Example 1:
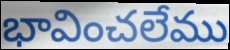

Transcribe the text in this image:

భావించలేము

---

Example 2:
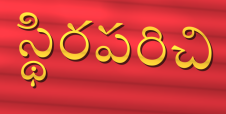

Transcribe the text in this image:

స్థిరపరిచి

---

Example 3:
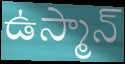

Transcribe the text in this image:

ఉస్మాన్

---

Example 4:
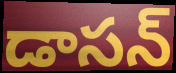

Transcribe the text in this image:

డాసన్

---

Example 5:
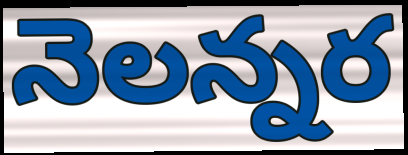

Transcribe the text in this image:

నెలన్నర